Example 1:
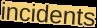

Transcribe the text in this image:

incidents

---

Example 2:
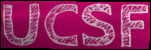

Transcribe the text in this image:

UCSF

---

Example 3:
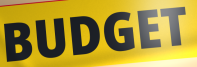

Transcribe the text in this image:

BUDGET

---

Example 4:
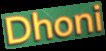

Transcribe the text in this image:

Dhoni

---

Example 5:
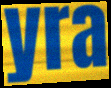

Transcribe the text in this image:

yra